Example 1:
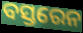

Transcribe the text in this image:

ବସ୍ତରେନ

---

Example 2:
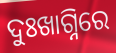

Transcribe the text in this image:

ଦୁଃଖାଗ୍ନିରେ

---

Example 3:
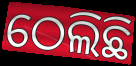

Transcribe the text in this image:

ଠେଲିଛି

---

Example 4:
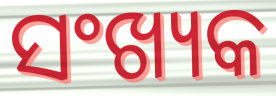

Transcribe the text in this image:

ସଂଖ୍ୟକ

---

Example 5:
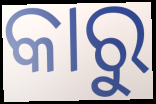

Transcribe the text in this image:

କାରୁ